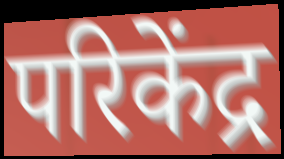
परिकेंद्र